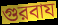
গুরবায